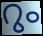
റും